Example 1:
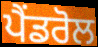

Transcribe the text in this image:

ਪੈਂਡਰੋਲ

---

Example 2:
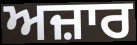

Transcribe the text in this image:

ਅਜ਼ਾਰ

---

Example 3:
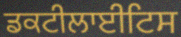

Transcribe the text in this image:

ਡਕਟੀਲਾਈਟਿਸ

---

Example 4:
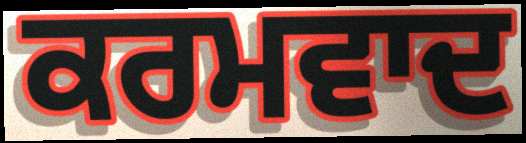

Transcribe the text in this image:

ਕਰਮਵਾਦ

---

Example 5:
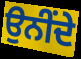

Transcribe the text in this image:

ਉਨੀਂਦੇ